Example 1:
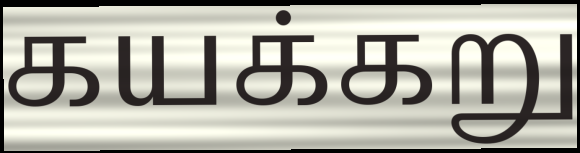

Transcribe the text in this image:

கயக்கறு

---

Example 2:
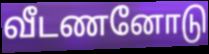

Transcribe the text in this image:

வீடணனோடு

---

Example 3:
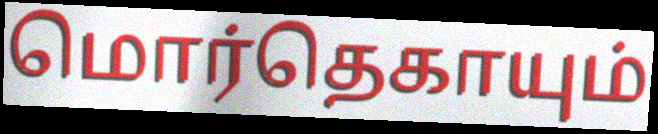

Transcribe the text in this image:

மொர்தெகாயும்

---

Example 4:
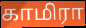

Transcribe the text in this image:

காமிரா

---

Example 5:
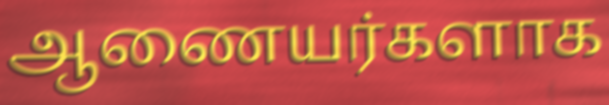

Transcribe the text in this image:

ஆணையர்களாக